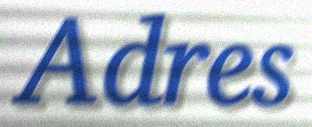
Adres